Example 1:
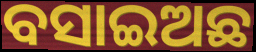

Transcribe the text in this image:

ବସାଇଅଛ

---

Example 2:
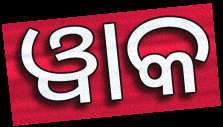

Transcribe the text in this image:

ୱାକ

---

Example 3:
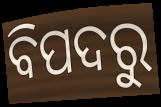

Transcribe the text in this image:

ବିପଦରୁ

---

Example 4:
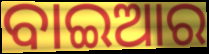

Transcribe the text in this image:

ବାଇଆର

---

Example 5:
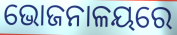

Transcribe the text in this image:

ଭୋଜନାଳୟରେ